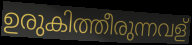
ഉരുകിത്തീരുന്നവള്